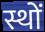
स्थों